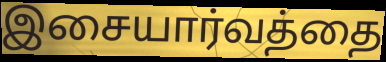
இசையார்வத்தை